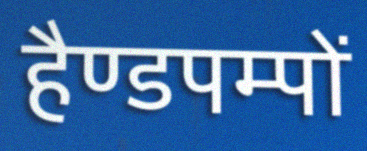
हैण्डपम्पों